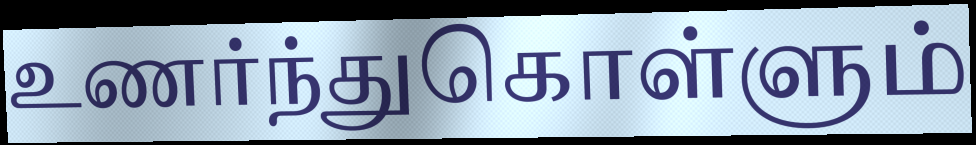
உணர்ந்துகொள்ளும்